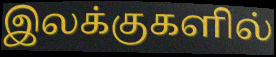
இலக்குகளில்